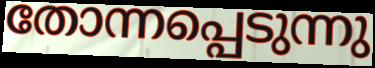
തോന്നപ്പെടുന്നു